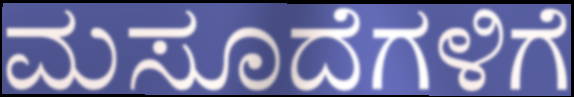
ಮಸೂದೆಗಳಿಗೆ